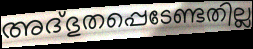
അദ്ഭുതപ്പെടേണ്ടതില്ല